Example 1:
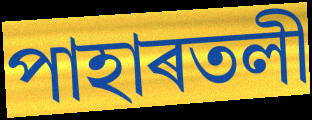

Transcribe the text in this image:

পাহাৰতলী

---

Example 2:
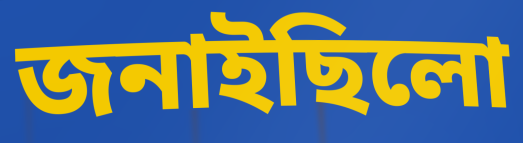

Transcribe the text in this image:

জনাইছিলো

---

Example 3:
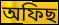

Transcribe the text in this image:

অফিছ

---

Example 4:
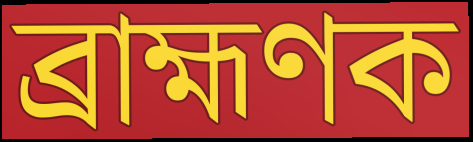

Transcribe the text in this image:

ব্ৰাহ্মণক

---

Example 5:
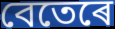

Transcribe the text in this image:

বেতেৰে